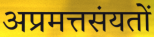
अप्रमत्तसंयतों